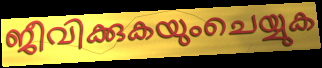
ജീവിക്കുകയുംചെയ്യുക